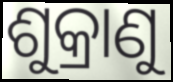
ଶୁକ୍ରାଣୁ